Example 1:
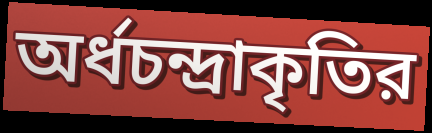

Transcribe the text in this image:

অর্ধচন্দ্রাকৃতির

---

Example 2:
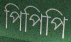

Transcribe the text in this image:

পিপিপি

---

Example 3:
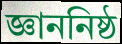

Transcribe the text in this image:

জ্ঞাননিষ্ঠ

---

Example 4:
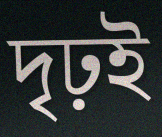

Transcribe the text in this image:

দৃঢ়ই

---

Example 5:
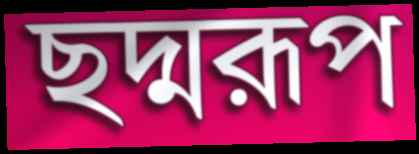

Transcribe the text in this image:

ছদ্মরূপ